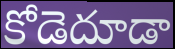
కోడెదూడా